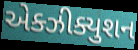
એક્ઝીક્યુશન